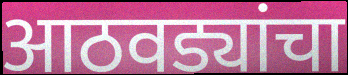
आठवड्यांचा